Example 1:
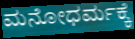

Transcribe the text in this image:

ಮನೋಧರ್ಮಕ್ಕೆ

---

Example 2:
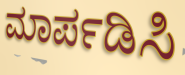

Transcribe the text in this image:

ಮಾರ್ಪಡಿಸಿ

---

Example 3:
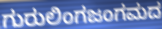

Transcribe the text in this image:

ಗುರುಲಿಂಗಜಂಗಮದ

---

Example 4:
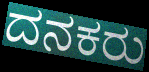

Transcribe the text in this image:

ದನಕರು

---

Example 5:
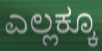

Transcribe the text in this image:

ಎಲ್ಲಕ್ಕೂ